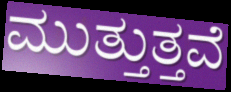
ಮುತ್ತುತ್ತವೆ